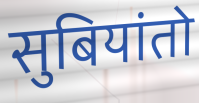
सुबियांतो